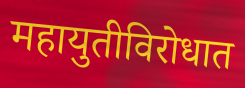
महायुतीविरोधात